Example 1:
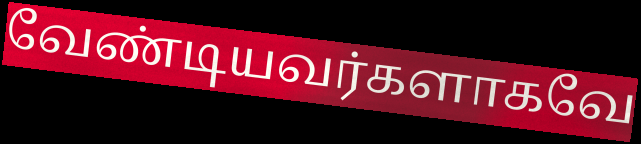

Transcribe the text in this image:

வேண்டியவர்களாகவே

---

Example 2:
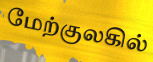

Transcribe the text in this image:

மேற்குலகில்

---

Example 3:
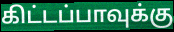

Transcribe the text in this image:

கிட்டப்பாவுக்கு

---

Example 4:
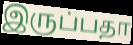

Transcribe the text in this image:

இருப்பதா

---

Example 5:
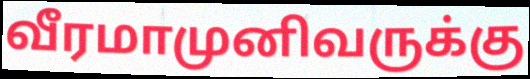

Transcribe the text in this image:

வீரமாமுனிவருக்கு